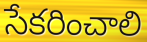
సేకరించాలి